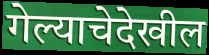
गेल्याचेदेखील